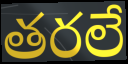
తరలే